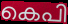
കെപി